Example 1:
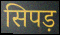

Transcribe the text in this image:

सिपड़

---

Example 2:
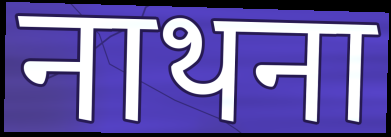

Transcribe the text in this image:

नाथना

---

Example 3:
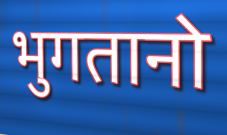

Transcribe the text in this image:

भुगतानो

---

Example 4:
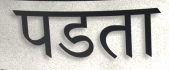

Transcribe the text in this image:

पडता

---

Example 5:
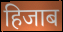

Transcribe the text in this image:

हिजाब